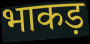
भाकड़